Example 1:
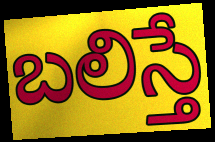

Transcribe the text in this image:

బలిస్తే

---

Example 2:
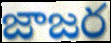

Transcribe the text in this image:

జాజర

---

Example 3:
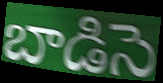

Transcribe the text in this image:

బాడిసె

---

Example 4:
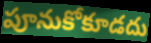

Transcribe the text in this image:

పూనుకోకూడదు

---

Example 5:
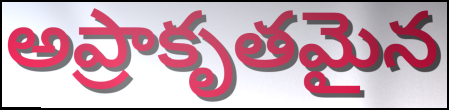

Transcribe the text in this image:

అప్రాకృతమైన